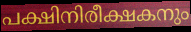
പക്ഷിനിരീക്ഷകനും